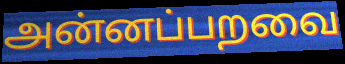
அன்னப்பறவை